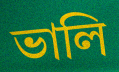
ভালি